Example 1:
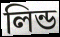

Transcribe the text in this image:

লিন্ড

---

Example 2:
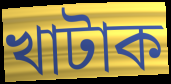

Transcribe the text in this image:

খাটাক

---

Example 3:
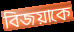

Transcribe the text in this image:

বিজয়াকে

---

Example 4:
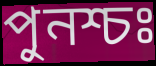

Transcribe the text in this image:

পুনশ্চঃ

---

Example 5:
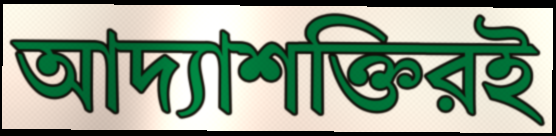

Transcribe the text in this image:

আদ্যাশক্তিরই